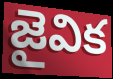
జైవిక